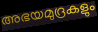
അഭയമുദ്രകളും